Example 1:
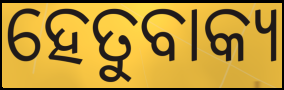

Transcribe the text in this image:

ହେତୁବାକ୍ୟ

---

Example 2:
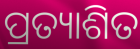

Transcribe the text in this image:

ପ୍ରତ୍ୟାଶିତ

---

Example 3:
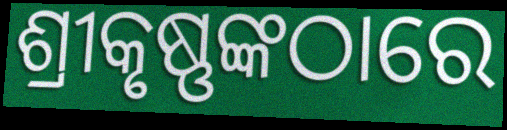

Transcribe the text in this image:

ଶ୍ରୀକୃଷ୍ଣଙ୍କଠାରେ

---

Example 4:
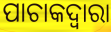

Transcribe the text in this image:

ପାଚାକଦ୍ଵାରା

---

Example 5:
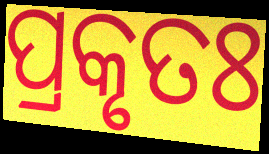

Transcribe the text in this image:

ପ୍ରକୃତଃ